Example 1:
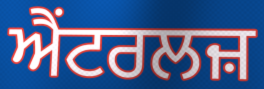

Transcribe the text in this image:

ਐਂਟਰਲਜ਼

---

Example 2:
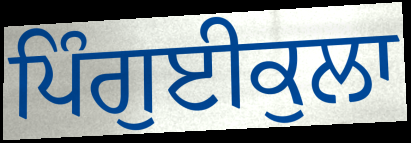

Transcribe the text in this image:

ਪਿੰਗੁਈਕੁਲਾ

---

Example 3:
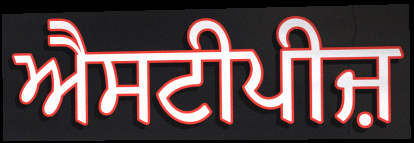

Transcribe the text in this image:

ਐਸਟੀਪੀਜ਼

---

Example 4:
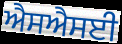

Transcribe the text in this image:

ਐਸਐਸਈ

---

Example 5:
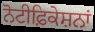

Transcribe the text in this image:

ਨੋਟੀਫ਼ਿਕੇਸ਼ਨਾਂ